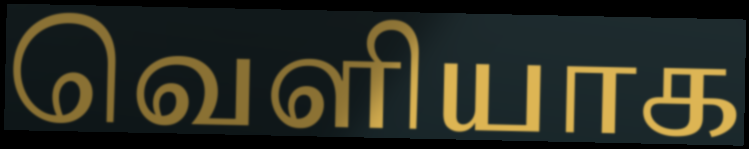
வெளியாக